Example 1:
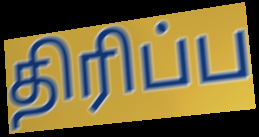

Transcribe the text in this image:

திரிப்ப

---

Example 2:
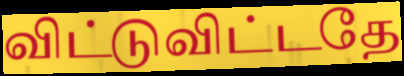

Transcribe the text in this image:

விட்டுவிட்டதே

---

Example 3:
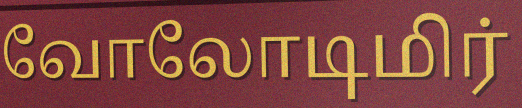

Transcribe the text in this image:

வோலோடிமிர்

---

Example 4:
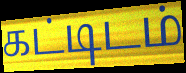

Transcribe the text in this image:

கட்டிடம்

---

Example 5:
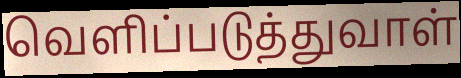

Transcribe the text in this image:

வெளிப்படுத்துவாள்